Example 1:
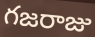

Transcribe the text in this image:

గజరాజు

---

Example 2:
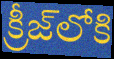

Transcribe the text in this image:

క్రీజ్‌లోకి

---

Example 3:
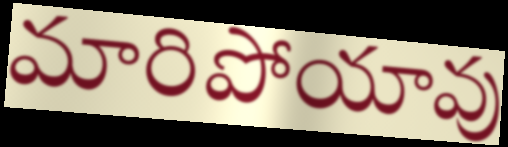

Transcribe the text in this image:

మారిపోయావు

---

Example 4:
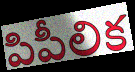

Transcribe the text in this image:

పిపీలిక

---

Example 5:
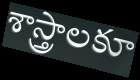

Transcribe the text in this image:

శాస్త్రాలకూ